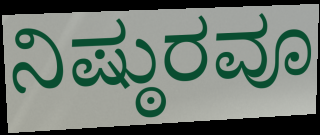
ನಿಷ್ಠುರವೂ